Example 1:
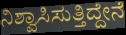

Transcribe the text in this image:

ನಿಶ್ವಾಸಿಸುತ್ತಿದ್ದೇನೆ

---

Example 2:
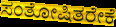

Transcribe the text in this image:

ಸಂತೋಷಿತರೇಕೆ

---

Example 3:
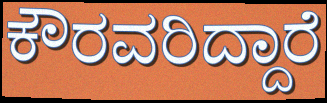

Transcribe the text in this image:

ಕೌರವರಿದ್ದಾರೆ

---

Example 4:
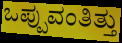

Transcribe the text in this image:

ಒಪ್ಪುವಂತಿತ್ತು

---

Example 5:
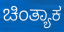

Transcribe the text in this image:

ಚಿಂತ್ಯಾಕ